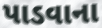
પાડવાના